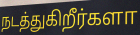
நடத்துகிறீர்களா